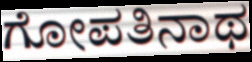
ಗೋಪತಿನಾಥ